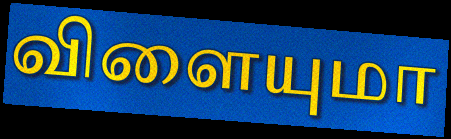
விளையுமா